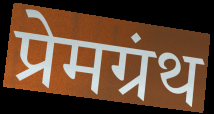
प्रेमग्रंथ